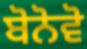
ਬੋਨੋਵੋ